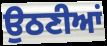
ਉਠਣੀਆਂ